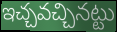
ఇచ్చవచ్చినట్టు